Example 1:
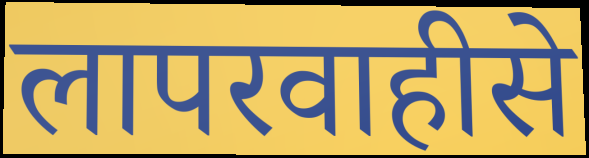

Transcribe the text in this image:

लापरवाहीसे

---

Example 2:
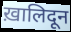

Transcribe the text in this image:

ख़ालिदून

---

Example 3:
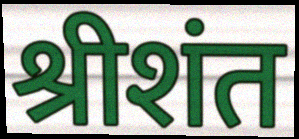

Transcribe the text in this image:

श्रीशंत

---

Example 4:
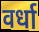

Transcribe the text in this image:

वर्धा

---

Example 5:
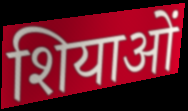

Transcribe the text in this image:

शियाओं